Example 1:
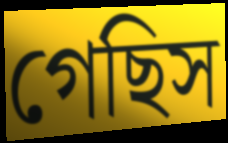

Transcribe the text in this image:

গেছিস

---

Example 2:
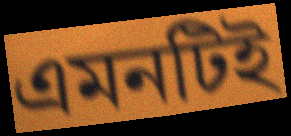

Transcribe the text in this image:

এমনটিই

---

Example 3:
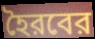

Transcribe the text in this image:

হৈরবের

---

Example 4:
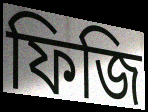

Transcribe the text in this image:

ফিজি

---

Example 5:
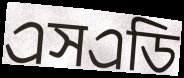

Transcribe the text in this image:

এসএডি